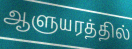
ஆளுயரத்தில்